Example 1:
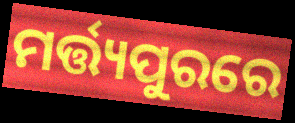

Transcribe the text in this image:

ମର୍ତ୍ତ୍ୟପୁରରେ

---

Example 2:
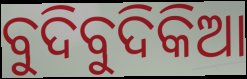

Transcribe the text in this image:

ବୁଦିବୁଦିକିଆ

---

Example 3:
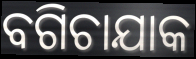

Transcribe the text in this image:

ବଗିଚାଯାକ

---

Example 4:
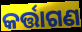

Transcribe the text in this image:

କର୍ତ୍ତାଗଣ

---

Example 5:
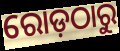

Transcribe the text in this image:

ରୋଡ଼ଠାରୁ